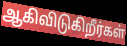
ஆகிவிடுகிறீர்கள்